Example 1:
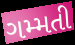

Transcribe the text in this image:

ગમ્મતી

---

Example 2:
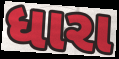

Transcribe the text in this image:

ધારા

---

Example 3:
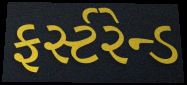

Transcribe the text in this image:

ફર્સ્ટરેન્ડ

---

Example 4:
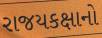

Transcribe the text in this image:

રાજયકક્ષાનો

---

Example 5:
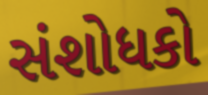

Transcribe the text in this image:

સંશોધકો